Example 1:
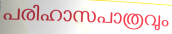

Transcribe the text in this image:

പരിഹാസപാത്രവും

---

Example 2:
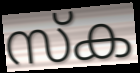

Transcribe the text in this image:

സ്ക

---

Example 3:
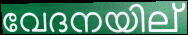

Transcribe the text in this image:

വേദനയില്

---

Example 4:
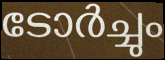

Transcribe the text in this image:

ടോർച്ചും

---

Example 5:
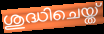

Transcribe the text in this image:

ശുദ്ധിചെയ്ത്